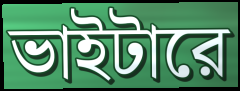
ভাইটারে